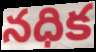
నధిక